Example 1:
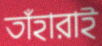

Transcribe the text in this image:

তাঁহারাই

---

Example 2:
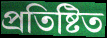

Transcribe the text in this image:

প্রতিষ্টিত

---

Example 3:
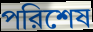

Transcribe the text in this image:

পরিশেষ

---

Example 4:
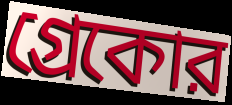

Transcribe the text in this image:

গ্রেকোর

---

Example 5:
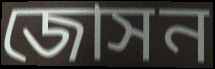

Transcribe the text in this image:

জোসন